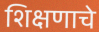
शिक्षणाचे